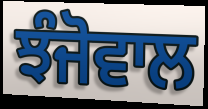
ਝੰਜੋਵਾਲ